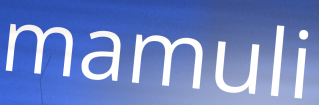
mamuli